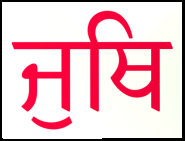
ਜੁਥਿ